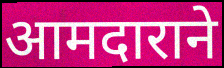
आमदाराने